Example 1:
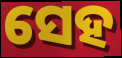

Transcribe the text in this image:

ସେହ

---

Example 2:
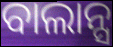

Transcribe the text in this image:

ବାଲାନ୍ସ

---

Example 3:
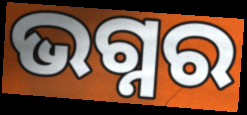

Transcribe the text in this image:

ଭଗ୍ନର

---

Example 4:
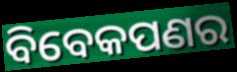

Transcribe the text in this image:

ବିବେକପଣର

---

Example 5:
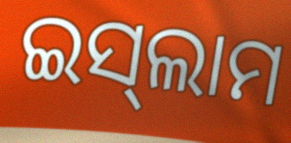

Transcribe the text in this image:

ଇସ୍‌ଲାମ